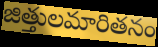
జిత్తులమారితనం